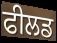
ਫੀਲਡ